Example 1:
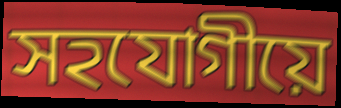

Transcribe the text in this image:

সহযোগীয়ে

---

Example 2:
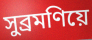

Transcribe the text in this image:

সুব্ৰমণিয়ে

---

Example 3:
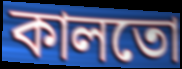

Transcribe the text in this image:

কালতো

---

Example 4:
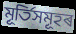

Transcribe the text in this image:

মূৰ্তিসমূহৰ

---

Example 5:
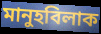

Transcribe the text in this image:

মানুহবিলাক